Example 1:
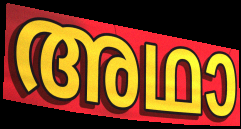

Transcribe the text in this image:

അഥാ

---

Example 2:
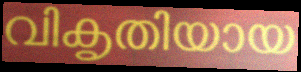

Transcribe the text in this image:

വികൃതിയായ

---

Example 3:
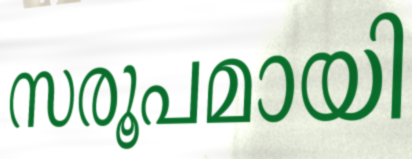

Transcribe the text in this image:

സരൂപമായി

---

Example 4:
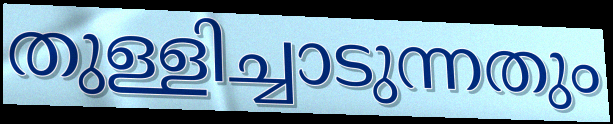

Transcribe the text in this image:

തുള്ളിച്ചാടുന്നതും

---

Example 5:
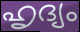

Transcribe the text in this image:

ഹൃദ്യം